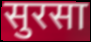
सुरसा